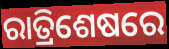
ରାତ୍ରିଶେଷରେ